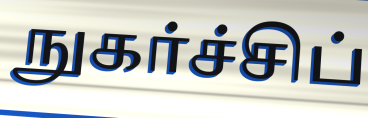
நுகர்ச்சிப்